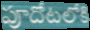
పూదోటలోకి